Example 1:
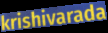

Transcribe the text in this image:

krishivarada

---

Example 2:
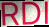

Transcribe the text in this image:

RDI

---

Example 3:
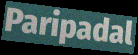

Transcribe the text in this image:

Paripadal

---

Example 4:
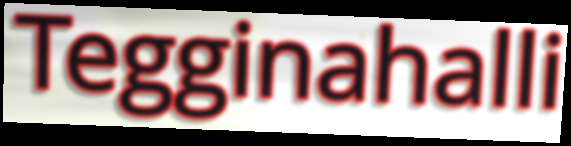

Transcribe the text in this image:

Tegginahalli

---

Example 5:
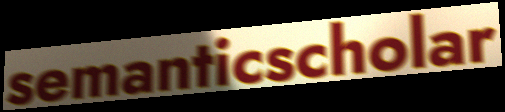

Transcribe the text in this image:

semanticscholar